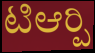
ಟಿಆರ್‍ಪಿ